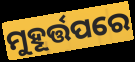
ମୁହୂର୍ତ୍ତପରେ